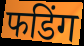
फडिंग